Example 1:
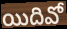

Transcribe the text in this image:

యిదివో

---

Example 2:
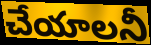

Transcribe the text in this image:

చేయాలనీ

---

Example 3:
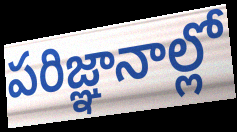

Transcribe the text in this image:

పరిజ్ఞానాల్లో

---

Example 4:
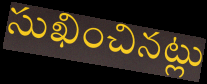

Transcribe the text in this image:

సుఖించినట్లు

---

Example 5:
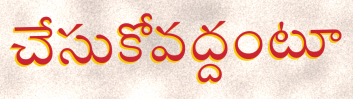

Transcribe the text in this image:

చేసుకోవద్దంటూ